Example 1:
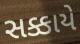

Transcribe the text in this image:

સક્કાયે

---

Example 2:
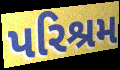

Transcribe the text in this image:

પરિશ્રમ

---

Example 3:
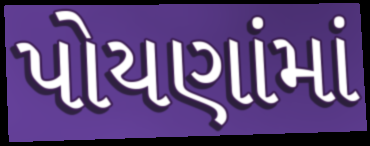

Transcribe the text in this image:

પોયણાંમાં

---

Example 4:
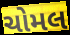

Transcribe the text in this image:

ચોમલ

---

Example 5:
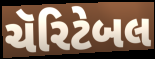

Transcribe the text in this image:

ચૅરિટેબલ